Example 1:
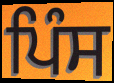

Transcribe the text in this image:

ਪਿੰਸ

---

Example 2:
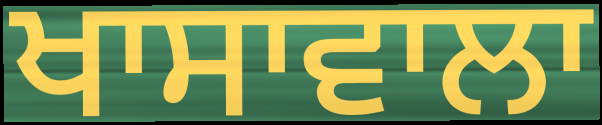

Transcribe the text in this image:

ਖਾਸਾਵਾਲਾ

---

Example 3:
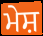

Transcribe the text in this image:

ਮੇਸ਼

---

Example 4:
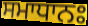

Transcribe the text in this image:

ਸਮਾਧਾਨਃ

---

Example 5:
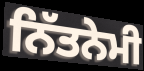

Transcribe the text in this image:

ਨਿੱਤਨੇਮੀ